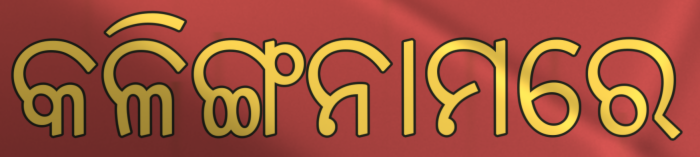
କଳିଙ୍ଗନାମରେ